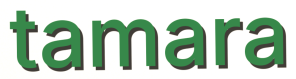
tamara